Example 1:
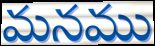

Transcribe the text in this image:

మనము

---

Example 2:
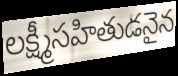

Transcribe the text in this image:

లక్ష్మీసహితుడనైన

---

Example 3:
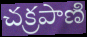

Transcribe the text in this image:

చక్రపాణి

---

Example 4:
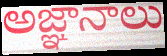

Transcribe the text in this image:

అజ్ఞానాలు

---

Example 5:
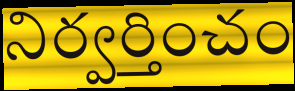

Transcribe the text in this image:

నిర్వర్తించం